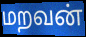
மறவன்